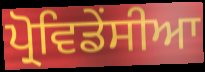
ਪ੍ਰੋਵਿਡੇਂਸੀਆ